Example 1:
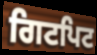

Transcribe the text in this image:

ਗਿਟਪਿਟ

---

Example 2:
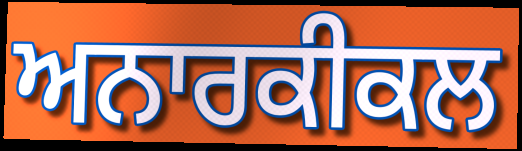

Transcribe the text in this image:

ਅਨਾਰਕੀਕਲ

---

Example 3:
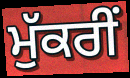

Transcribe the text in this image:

ਮੁੱਕਰੀਂ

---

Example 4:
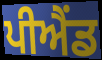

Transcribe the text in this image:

ਪੀਐਂਡ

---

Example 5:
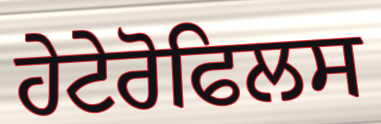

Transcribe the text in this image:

ਹੇਟੇਰੋਫਿਲਸ